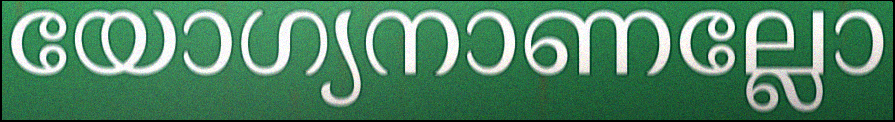
യോഗ്യനാണല്ലോ